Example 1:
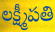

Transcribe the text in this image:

లక్ష్మీపతి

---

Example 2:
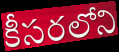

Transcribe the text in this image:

కీసరలోని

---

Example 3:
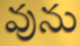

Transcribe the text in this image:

వును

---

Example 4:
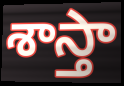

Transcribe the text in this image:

శాస్తా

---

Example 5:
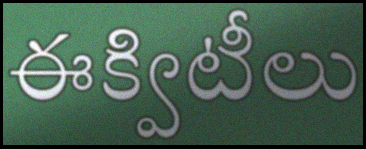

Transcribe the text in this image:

ఈక్విటీలు